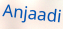
Anjaadi